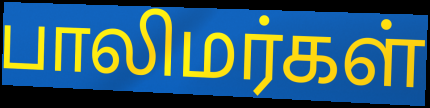
பாலிமர்கள்